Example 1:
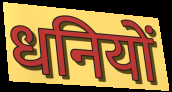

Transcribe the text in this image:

धनियों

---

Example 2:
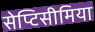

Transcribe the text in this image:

सेप्टिसीमिया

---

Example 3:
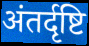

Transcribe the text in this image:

अंतर्दृष्टि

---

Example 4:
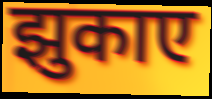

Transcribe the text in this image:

झुकाए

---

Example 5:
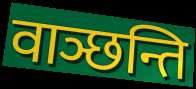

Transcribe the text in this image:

वाञ्छन्ति